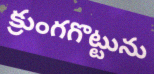
క్రుంగగొట్టును